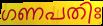
ഗണപതിഃ